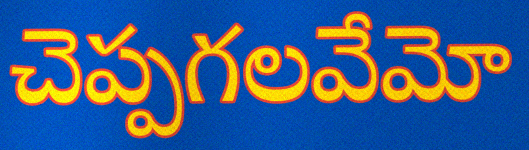
చెప్పగలవేమో